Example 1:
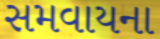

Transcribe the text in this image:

સમવાયના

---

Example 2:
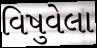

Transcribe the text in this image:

વિષુવેલા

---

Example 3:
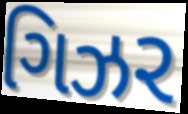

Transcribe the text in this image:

ગિઝર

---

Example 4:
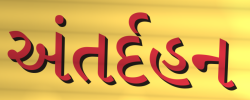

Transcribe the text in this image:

અંતર્દહન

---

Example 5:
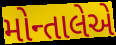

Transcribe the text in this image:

મોન્તાલેએ